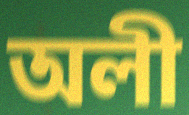
অলী